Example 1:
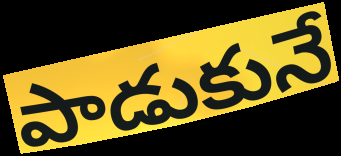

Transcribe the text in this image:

పాడుకునే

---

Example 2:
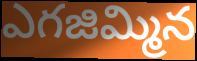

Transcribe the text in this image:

ఎగజిమ్మిన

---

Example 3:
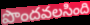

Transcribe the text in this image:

పొందవలసింది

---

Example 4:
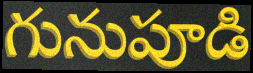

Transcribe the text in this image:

గునుపూడి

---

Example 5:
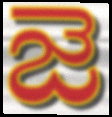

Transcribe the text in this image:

జె